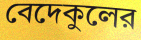
বেদেকুলের